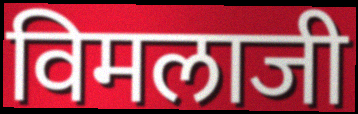
विमलाजी